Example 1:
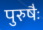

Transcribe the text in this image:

पुरुषैः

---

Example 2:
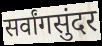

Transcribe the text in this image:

सर्वांगसुंदर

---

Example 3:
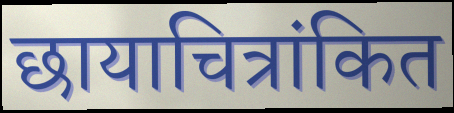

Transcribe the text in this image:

छायाचित्रांकित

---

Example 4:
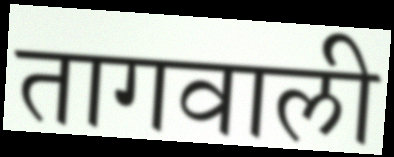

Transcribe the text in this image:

तागवाली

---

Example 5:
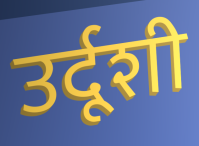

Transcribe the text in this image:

उर्दूशी